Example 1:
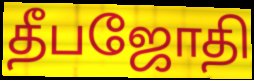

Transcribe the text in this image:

தீபஜோதி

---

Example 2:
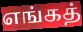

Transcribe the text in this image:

எங்கத்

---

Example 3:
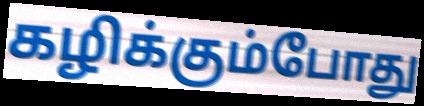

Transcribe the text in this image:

கழிக்கும்போது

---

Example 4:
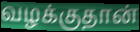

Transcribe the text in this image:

வழக்குதான்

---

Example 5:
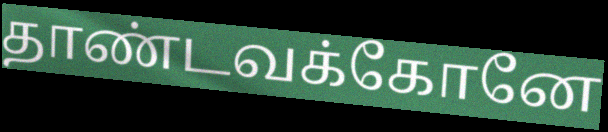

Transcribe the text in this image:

தாண்டவக்கோனே